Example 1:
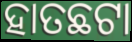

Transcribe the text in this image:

ହାତଛଟା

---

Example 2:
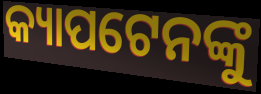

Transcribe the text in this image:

କ୍ୟାପଟେନଙ୍କୁ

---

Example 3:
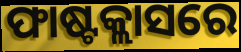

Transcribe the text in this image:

ଫାଷ୍ଟକ୍ଲାସରେ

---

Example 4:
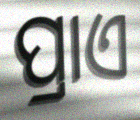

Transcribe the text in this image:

ପ୍ରାଏ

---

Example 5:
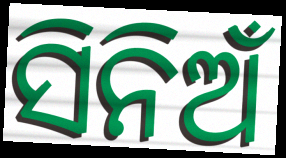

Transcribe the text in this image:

ସିନିଅଁ